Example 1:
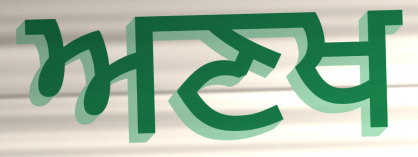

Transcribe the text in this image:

ਅਣਖ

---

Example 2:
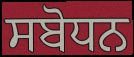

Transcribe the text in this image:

ਸਬੋਧਨ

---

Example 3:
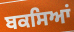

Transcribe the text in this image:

ਬਕਸਿਆਂ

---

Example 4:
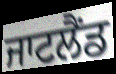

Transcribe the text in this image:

ਜਾਟਲੈਂਡ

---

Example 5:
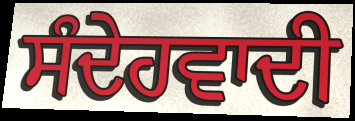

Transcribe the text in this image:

ਸੰਦੇਹਵਾਦੀ